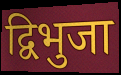
द्विभुजा